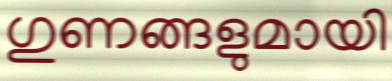
ഗുണങ്ങളുമായി